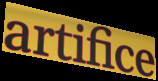
artifice